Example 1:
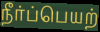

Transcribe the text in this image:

நீர்ப்பெயற்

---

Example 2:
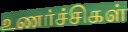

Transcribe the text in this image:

உணர்ச்சிகள்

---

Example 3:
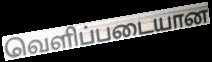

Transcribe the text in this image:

வெளிப்படையான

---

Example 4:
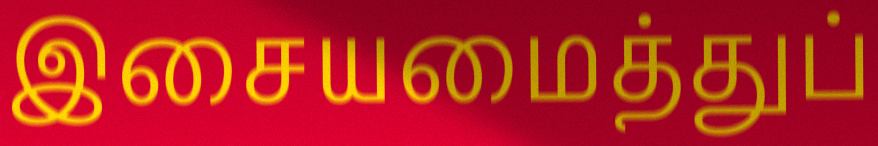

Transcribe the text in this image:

இசையமைத்துப்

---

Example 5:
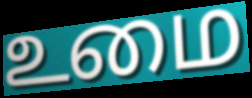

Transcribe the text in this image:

உமை